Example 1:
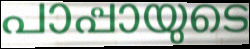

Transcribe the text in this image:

പാപ്പായുടെ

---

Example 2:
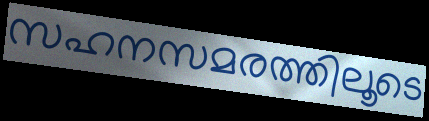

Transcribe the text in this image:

സഹനസമരത്തിലൂടെ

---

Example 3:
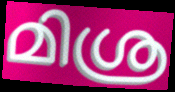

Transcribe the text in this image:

മിശ്ര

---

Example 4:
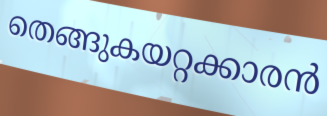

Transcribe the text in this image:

തെങ്ങുകയറ്റക്കാരൻ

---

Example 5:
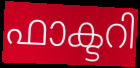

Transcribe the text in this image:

ഫാക്ടറി